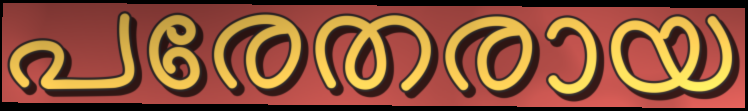
പരേതരായ